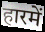
हारमें